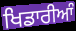
ਖਿਡਾਰੀਆੰ